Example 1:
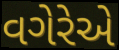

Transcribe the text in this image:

વગેરેએ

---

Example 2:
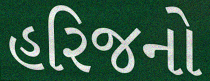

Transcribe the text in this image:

હરિજનો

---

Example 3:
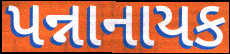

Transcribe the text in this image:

પન્નાનાયક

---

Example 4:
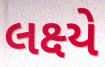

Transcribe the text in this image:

લક્ષ્યે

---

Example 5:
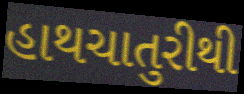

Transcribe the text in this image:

હાથચાતુરીથી